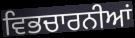
ਵਿਭਚਾਰਨੀਆਂ